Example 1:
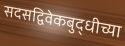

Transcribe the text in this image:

सदसद्विवेकबुद्धीच्या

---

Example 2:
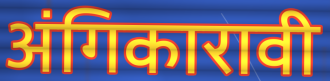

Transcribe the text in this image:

अंगिकारावी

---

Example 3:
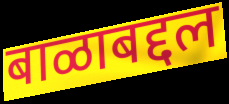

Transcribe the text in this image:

बाळाबद्दल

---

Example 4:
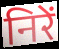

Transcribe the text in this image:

निरें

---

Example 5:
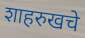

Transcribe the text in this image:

शाहरुखचे